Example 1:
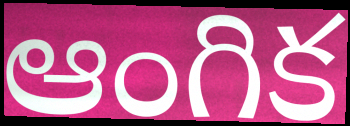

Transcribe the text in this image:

ఆంగిక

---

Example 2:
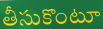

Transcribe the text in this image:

తీసుకొంటూ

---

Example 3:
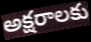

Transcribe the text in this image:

అక్షరాలకు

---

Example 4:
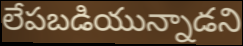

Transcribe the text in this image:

లేపబడియున్నాడని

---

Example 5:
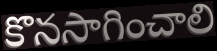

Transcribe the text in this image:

కొనసాగించాలి